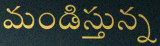
మండిస్తున్న